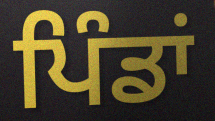
ਪਿੰਡਾਂ